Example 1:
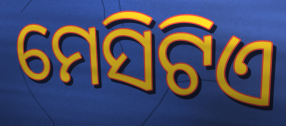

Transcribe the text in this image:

ମେସିଟିଏ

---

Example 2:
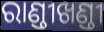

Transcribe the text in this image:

ରାଣ୍ଡୀଖଣ୍ଡୀ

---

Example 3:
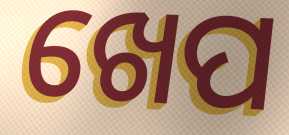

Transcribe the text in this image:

ଖେପ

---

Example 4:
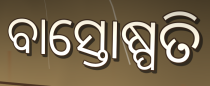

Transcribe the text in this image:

ବାସ୍ତୋଷ୍ପତି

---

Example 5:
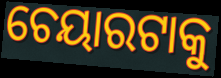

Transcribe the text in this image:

ଚେୟାରଟାକୁ